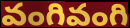
వంగివంగి